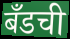
बँडची